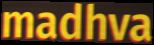
madhva